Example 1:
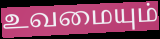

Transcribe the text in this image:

உவமையும்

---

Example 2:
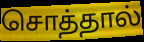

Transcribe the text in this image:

சொத்தால்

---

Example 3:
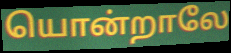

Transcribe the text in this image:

யொன்றாலே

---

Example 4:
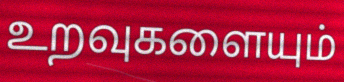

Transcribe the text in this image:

உறவுகளையும்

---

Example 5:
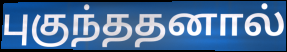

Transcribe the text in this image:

புகுந்ததனால்